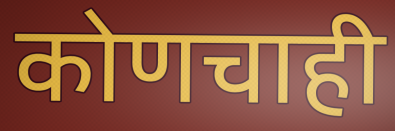
कोणचाही